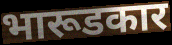
भारूडकार